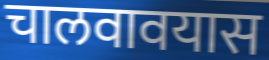
चालवावयास